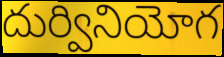
దుర్వినియోగ